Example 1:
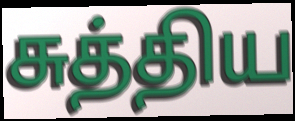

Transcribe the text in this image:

சுத்திய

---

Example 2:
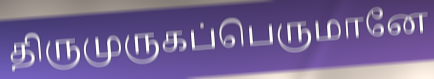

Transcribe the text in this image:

திருமுருகப்பெருமானே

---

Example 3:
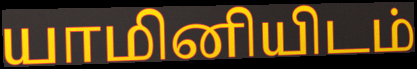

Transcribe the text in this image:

யாமினியிடம்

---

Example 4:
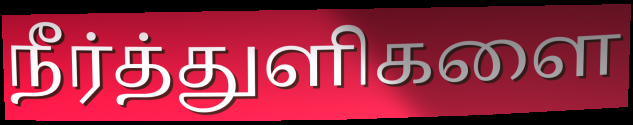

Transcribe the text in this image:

நீர்த்துளிகளை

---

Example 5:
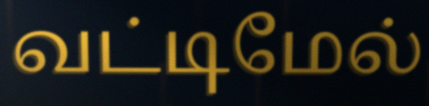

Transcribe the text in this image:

வட்டிமேல்